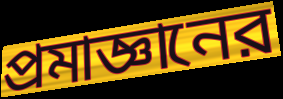
প্রমাজ্ঞানের